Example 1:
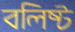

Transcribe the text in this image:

বলিষ্ট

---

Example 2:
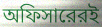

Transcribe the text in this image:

অফিসারেরই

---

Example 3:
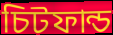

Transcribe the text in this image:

চিটফান্ড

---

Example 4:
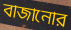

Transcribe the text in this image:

বাজানোর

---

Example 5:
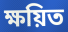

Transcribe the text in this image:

ক্ষয়িত